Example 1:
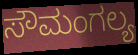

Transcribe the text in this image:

ಸೌಮಂಗಲ್ಯ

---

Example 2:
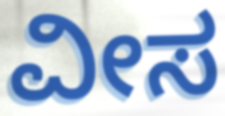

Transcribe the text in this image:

ವೀಸ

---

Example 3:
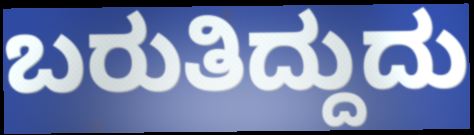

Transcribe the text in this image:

ಬರುತಿದ್ದುದು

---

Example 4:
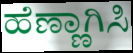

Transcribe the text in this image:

ಹೆಣ್ಣಾಗಿಸಿ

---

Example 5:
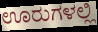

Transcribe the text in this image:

ಊರುಗಳಲ್ಲಿ